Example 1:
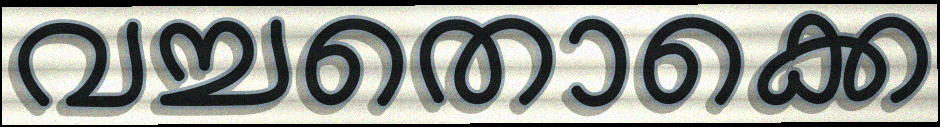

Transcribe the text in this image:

വച്ചതൊക്കെ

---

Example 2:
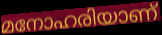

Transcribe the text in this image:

മനോഹരിയാണ്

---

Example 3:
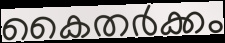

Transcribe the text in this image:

കൈതർക്കം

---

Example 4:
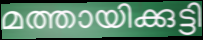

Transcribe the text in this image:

മത്തായിക്കുട്ടി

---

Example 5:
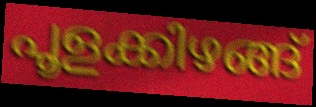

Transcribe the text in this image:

പൂളക്കിഴങ്ങ്